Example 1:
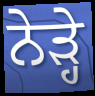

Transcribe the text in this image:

ਨੇੜ੍ਹੇ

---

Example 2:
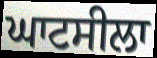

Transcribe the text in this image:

ਘਾਟਸੀਲਾ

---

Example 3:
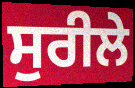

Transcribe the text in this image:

ਸੁਰੀਲੇ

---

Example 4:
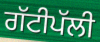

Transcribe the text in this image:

ਗੱਟੀਪੱਲੀ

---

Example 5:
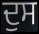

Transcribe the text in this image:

ਦੁਸ